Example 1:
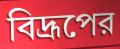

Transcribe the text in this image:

বিদ্রূপের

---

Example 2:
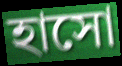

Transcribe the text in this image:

হাসো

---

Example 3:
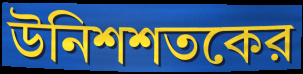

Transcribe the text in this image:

উনিশশতকের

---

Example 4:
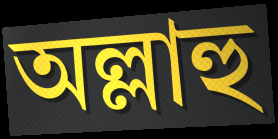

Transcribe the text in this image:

অল্লাহু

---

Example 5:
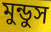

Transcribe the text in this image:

মুন্ডুস